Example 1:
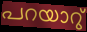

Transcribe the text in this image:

പറയാറു്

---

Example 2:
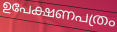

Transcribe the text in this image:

ഉപേക്ഷണപത്രം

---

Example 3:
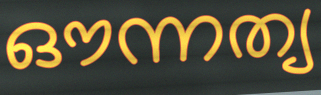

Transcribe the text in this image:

ഔന്നത്യ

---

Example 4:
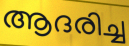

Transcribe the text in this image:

ആദരിച്ച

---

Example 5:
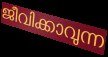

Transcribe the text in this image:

ജീവിക്കാവുന്ന